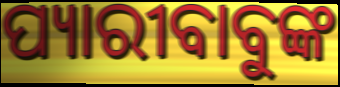
ପ୍ୟାରୀବାବୁଙ୍କ